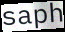
saph